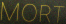
MORT